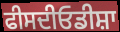
ਫੀਸਦੀਓਡੀਸ਼ਾ